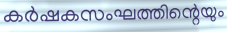
കർഷകസംഘത്തിന്റെയും